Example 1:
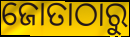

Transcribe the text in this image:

ଜୋତାଠାରୁ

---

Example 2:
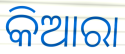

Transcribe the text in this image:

କିଆରା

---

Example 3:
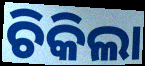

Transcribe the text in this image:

ଚିକିଲା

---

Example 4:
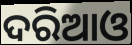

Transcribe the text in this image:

ଦରିଆଓ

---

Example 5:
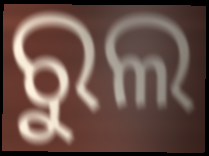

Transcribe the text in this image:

ରୁଲ